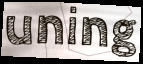
uning